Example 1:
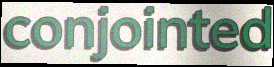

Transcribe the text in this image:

conjointed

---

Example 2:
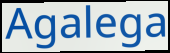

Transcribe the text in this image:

Agalega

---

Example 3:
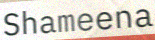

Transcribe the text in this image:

Shameena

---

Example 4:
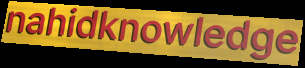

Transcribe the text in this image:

nahidknowledge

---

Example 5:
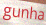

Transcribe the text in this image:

gunha